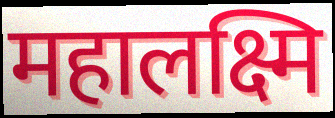
महालक्ष्मि